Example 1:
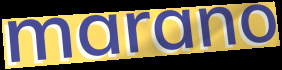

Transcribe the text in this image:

marano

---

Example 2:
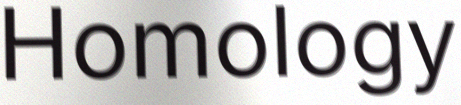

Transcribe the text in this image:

Homology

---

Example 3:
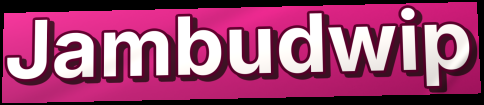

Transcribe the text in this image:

Jambudwip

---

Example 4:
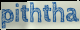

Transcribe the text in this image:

piththa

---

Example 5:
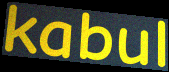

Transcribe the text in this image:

kabul